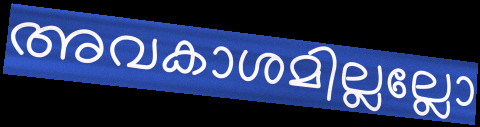
അവകാശമില്ലല്ലോ